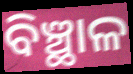
ବିଞ୍ଛାଳ